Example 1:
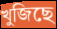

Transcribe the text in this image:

খুজিছে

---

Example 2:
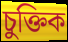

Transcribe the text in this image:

চুক্তিক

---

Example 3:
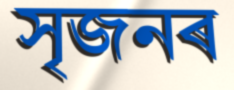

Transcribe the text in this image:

সৃজনৰ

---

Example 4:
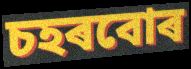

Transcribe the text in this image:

চহৰবোৰ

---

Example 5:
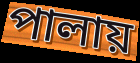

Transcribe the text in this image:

পালায়